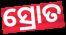
ସ୍ରୋତ